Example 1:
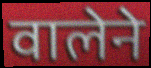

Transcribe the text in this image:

वालेने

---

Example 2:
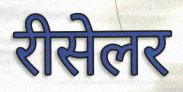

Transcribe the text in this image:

रीसेलर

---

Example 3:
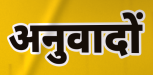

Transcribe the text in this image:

अनुवादों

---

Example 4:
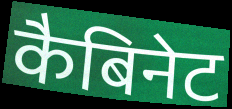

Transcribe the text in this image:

कैबिनेट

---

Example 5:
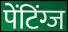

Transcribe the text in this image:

पेंटिंग्ज